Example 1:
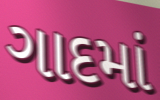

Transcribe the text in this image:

ગાદમાં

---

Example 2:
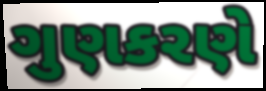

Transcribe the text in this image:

ગુણકરણે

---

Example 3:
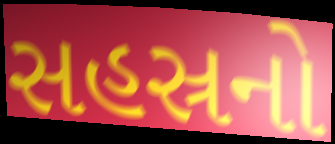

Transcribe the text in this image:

સહસ્રનો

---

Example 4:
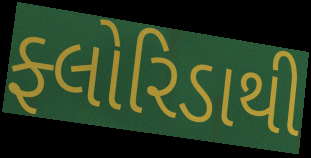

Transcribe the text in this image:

ફ્લોરિડાથી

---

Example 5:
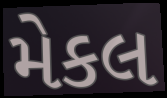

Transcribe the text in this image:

મેકલ